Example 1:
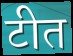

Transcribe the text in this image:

टीत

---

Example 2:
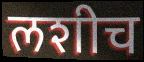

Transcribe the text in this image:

लशीच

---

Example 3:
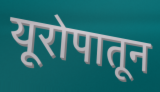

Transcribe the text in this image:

यूरोपातून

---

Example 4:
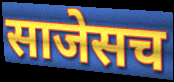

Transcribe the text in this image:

साजेसच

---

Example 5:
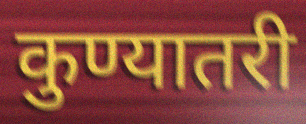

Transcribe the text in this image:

कुण्यातरी